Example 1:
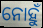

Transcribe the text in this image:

ନୋହୁଁ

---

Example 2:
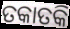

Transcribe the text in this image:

ତକାତକି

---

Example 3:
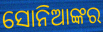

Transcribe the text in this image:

ସୋନିଆଙ୍କର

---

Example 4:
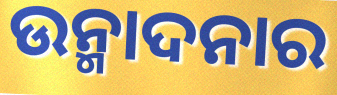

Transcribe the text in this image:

ଉନ୍ମାଦନାର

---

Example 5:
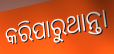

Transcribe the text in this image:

କରିପାରୁଥାନ୍ତା